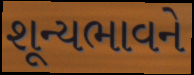
શૂન્યભાવને